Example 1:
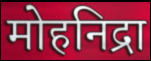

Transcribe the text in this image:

मोहनिद्रा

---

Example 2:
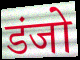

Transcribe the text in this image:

डंजो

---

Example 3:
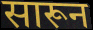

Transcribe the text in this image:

सारून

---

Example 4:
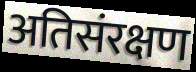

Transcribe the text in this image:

अतिसंरक्षण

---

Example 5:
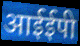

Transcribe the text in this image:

आईईपी